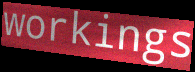
workings